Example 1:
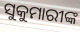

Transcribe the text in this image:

ସୁକୁମାରୀଙ୍କ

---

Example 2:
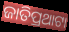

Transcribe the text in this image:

ଜାତିପ୍ରଥାଟା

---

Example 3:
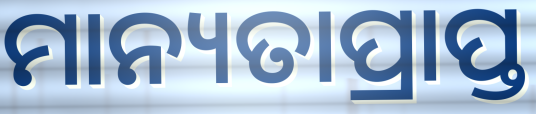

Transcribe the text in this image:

ମାନ୍ୟତାପ୍ରାପ୍ତ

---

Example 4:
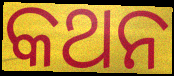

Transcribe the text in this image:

କଥନ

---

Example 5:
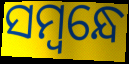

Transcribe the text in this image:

ସମ୍ବନ୍ଧେ